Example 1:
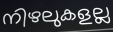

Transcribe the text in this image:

നിഴലുകളല്ല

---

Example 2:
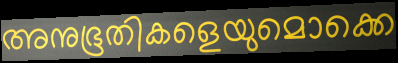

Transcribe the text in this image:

അനുഭൂതികളെയുമൊക്കെ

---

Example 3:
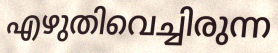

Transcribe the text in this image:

എഴുതിവെച്ചിരുന്ന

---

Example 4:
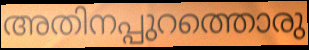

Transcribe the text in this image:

അതിനപ്പുറത്തൊരു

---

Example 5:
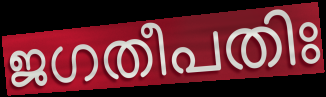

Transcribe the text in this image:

ജഗതീപതിഃ